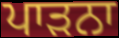
ਪਾੜਨਾ